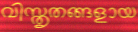
വിസ്തൃതങ്ങളായ